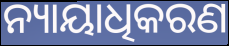
ନ୍ୟାୟାଧିକରଣ